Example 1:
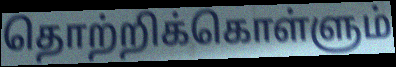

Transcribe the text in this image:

தொற்றிக்கொள்ளும்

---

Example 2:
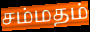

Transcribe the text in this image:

சம்மதம்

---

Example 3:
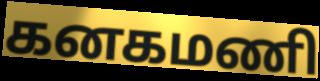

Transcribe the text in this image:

கனகமணி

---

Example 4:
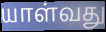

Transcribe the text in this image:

யாள்வது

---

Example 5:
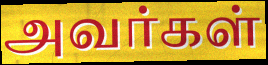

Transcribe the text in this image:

அவர்கள்